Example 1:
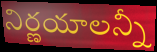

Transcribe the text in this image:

నిర్ణయాలన్నీ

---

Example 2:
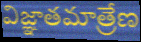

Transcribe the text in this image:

విజ్ఞాతమాత్రేణ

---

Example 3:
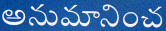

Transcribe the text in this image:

అనుమానించ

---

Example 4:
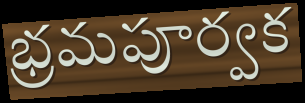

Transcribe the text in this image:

భ్రమపూర్వక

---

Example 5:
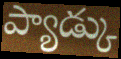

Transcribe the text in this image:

ప్యాడ్కు